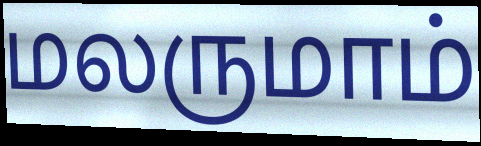
மலருமாம்